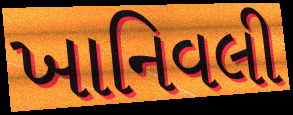
ખાનિવલી